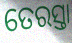
ତେରସ୍ତା